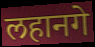
लहानगे